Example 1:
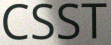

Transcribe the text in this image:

CSST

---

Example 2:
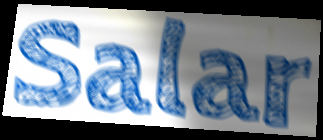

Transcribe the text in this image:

Salar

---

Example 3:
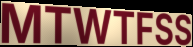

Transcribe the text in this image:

MTWTFSS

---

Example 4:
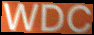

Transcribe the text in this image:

WDC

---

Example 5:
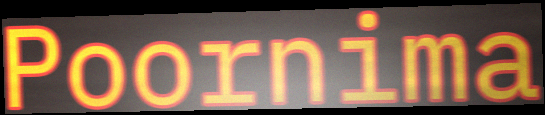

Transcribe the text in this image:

Poornima